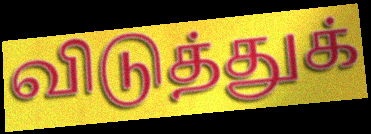
விடுத்துக்